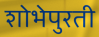
शोभेपुरती